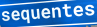
sequentes